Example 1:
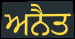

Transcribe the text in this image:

ਅਨੈਤ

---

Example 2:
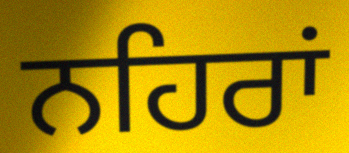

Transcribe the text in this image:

ਨਹਿਰਾਂ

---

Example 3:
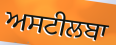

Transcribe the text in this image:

ਅਸਟੀਲਬਾ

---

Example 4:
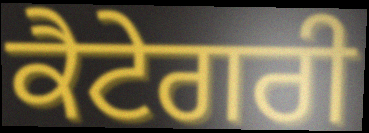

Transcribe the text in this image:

ਕੈਟੇਗਰੀ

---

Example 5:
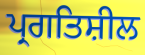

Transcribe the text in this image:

ਪ੍ਰਗਤਿਸ਼ੀਲ